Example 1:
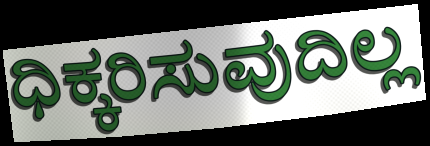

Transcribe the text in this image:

ಧಿಕ್ಕರಿಸುವುದಿಲ್ಲ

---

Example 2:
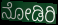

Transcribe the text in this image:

ನೋಡಿರಿ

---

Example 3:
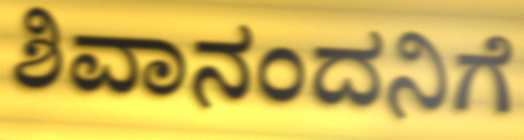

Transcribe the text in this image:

ಶಿವಾನಂದನಿಗೆ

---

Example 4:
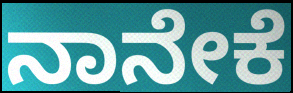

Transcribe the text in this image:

ನಾನೇಕೆ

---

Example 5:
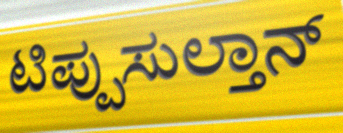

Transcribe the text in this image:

ಟಿಪ್ಪುಸುಲ್ತಾನ್